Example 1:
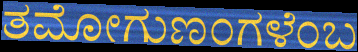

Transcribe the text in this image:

ತಮೋಗುಣಂಗಳೆಂಬ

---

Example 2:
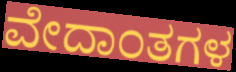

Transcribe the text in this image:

ವೇದಾಂತಗಳ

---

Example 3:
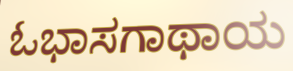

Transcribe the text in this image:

ಓಭಾಸಗಾಥಾಯ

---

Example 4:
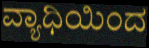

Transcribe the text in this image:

ವ್ಯಾಧಿಯಿಂದ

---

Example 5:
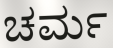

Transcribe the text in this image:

ಚರ್ಮ